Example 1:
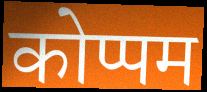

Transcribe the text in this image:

कोप्पम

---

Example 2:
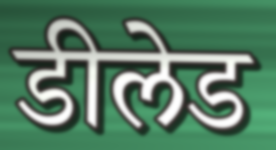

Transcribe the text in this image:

डीलेड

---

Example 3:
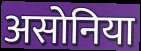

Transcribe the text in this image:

असोनिया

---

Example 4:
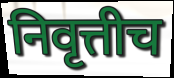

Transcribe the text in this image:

निवृत्तीच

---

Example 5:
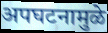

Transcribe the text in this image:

अपघटनामुळे